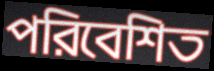
পরিবেশিত